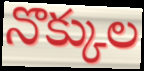
నొక్కుల